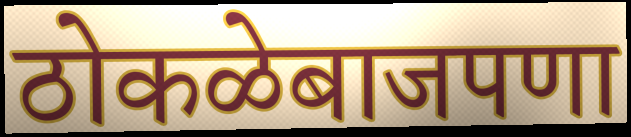
ठोकळेबाजपणा